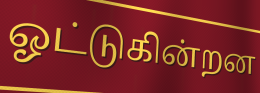
ஓட்டுகின்றன